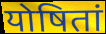
योषितां